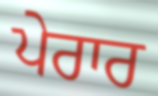
ਪੇਰਾਰ